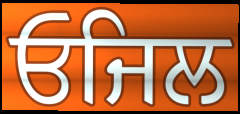
ਓਜਿਲ